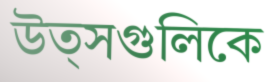
উত্সগুলিকে